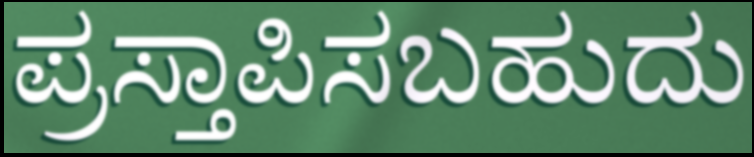
ಪ್ರಸ್ತಾಪಿಸಬಹುದು